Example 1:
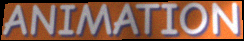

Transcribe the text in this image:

ANIMATION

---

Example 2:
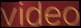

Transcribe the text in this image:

video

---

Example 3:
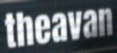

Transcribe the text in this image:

theavan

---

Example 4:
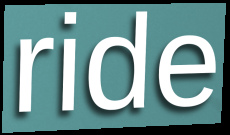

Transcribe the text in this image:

ride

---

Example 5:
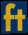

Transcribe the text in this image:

ft